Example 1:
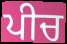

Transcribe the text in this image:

ਪੀਚ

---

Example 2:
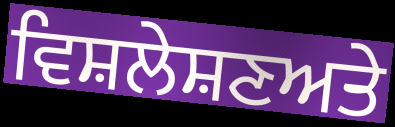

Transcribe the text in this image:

ਵਿਸ਼ਲੇਸ਼ਣਅਤੇ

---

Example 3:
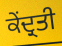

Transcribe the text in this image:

ਕੇਂਦ੍ਰਤੀ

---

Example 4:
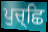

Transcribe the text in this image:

ਪੁਚ੍ਛਿ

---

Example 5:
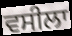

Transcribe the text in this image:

ਵਸੀਲਾ